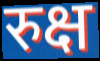
रुक्ष